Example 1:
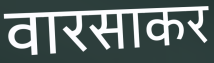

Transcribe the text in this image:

वारसाकर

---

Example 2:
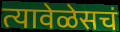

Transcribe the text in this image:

त्यावेळेसचं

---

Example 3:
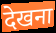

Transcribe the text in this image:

देखना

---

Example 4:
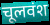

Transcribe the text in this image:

चूलवंश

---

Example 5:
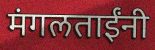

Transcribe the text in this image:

मंगलताईंनी